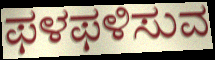
ಫಳಫಳಿಸುವ